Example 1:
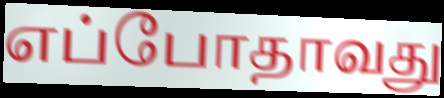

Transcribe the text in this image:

எப்போதாவது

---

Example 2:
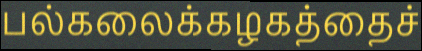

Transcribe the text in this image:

பல்கலைக்கழகத்தைச்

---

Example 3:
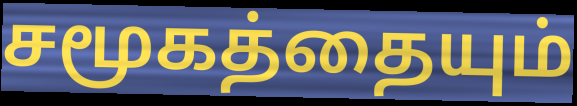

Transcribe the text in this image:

சமூகத்தையும்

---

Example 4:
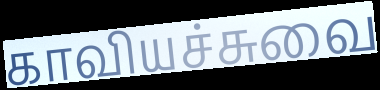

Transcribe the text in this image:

காவியச்சுவை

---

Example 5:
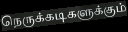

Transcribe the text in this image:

நெருக்கடிகளுக்கும்